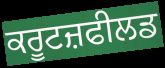
ਕਰੂਟਜ਼ਫੀਲਡ